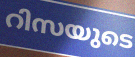
റിസയുടെ